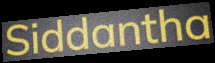
Siddantha